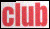
club